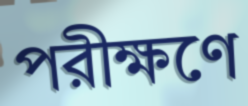
পরীক্ষণে